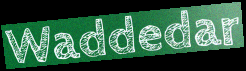
Waddedar